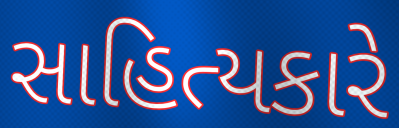
સાહિત્યકારે